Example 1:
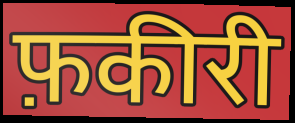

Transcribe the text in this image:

फ़कीरी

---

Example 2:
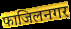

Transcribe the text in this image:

फाजिलनगर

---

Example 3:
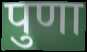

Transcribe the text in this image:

पुणा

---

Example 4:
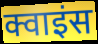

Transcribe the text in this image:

क्वाइंस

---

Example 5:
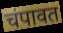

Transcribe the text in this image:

चंपावत